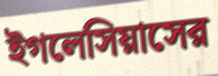
ইগলেসিয়াসের